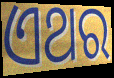
ଏଥର